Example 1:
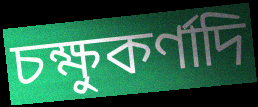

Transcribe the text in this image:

চক্ষুকর্ণাদি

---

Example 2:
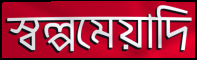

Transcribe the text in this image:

স্বল্পমেয়াদি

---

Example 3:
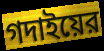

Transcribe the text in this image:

গদাইয়ের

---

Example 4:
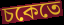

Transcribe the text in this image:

চকেতে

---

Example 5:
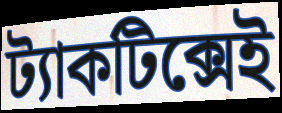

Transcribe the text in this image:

ট্যাকটিক্সেই